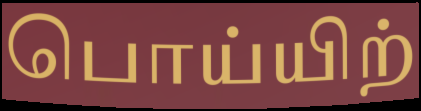
பொய்யிற்